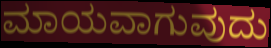
ಮಾಯವಾಗುವುದು